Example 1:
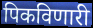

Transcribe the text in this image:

पिकविणारी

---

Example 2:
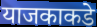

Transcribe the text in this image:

याजकाकडे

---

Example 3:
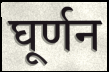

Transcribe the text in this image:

घूर्णन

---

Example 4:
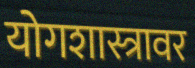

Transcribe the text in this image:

योगशास्त्रावर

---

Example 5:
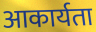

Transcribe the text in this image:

आकार्यता